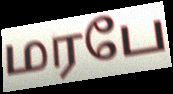
மரபே